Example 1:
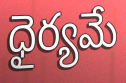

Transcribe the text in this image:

ధైర్యమే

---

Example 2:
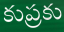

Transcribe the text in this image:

కుప్రకు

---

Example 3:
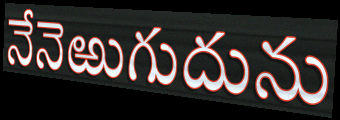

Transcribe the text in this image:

నేనెఱుగుదును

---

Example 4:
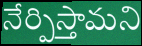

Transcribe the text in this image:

నేర్పిస్తామని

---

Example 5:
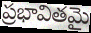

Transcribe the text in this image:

ప్రభావితమై